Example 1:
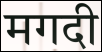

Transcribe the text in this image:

मगदी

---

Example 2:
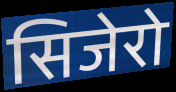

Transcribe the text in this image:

सिजेरो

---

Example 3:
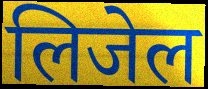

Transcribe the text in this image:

लिजेल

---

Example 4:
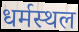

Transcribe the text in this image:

धर्मस्थल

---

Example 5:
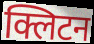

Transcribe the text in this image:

क्लिटन